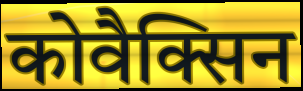
कोवैक्सिन